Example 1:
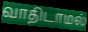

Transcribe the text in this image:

வாதிடாமல்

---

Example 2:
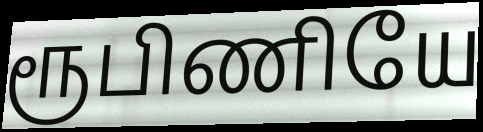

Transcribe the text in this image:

ரூபிணியே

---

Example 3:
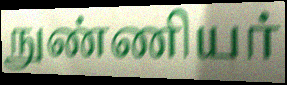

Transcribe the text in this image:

நுண்ணியர்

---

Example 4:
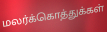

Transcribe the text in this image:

மலர்க்கொத்துக்கள்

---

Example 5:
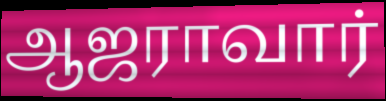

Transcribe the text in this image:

ஆஜராவார்